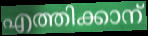
എത്തിക്കാന്